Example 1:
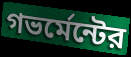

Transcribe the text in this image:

গভর্মেন্টের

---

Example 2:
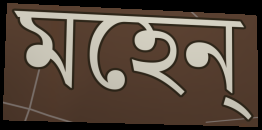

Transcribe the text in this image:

মহেন্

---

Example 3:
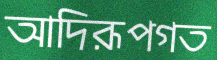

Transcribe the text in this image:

আদিরূপগত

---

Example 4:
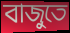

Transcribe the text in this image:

বাজুতে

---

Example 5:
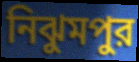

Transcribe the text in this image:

নিঝুমপুর